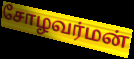
சோழவர்மன்